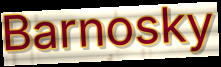
Barnosky